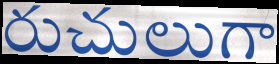
రుచులుగా